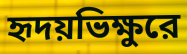
হৃদয়ভিক্ষুরে